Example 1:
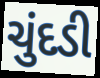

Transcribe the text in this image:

ચુંદડી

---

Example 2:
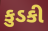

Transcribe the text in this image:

કુડકી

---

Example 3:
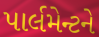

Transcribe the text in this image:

પાર્લમેન્ટને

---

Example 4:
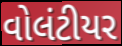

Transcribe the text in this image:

વોલંટીયર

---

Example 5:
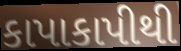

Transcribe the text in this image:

કાપાકાપીથી